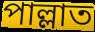
পাল্লাত